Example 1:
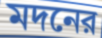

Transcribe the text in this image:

মদনের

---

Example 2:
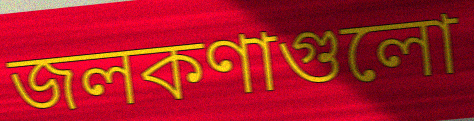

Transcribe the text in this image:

জলকণাগুলো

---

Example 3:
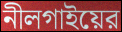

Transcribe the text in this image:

নীলগাইয়ের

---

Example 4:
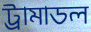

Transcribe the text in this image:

ট্রামাডল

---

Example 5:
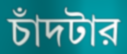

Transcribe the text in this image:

চাঁদটার